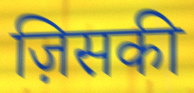
ज़िसकी